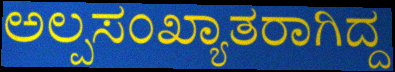
ಅಲ್ಪಸಂಖ್ಯಾತರಾಗಿದ್ದ